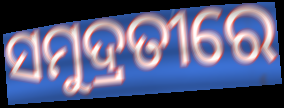
ସମୁଦ୍ରତୀରେ